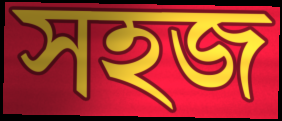
সহজ